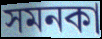
সমনকা